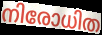
നിരോധിത